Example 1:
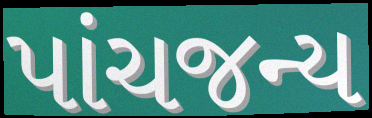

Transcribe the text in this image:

પાંચજન્ય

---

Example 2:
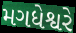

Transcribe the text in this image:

મગધેશ્વરે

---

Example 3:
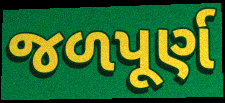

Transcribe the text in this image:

જળપૂર્ણ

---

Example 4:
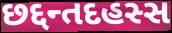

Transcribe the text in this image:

છદ્દન્તદહસ્સ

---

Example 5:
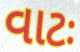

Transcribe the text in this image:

વાટઃ